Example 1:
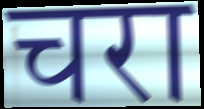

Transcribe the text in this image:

चरा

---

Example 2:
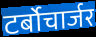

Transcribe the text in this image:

टर्बोचार्जर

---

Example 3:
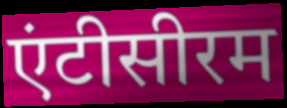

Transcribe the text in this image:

एंटीसीरम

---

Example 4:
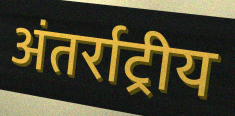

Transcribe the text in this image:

अंतर्राट्रीय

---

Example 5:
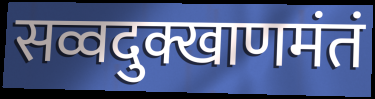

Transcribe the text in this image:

सव्वदुक्खाणमंतं